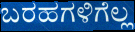
ಬರಹಗಳಿಗೆಲ್ಲ